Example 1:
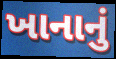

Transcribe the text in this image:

ખાનાનું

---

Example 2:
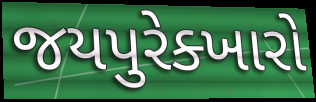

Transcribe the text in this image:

જયપુરેક્ખારો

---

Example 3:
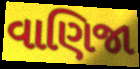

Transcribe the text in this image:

વાણિજા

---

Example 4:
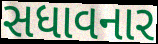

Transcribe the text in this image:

સધાવનાર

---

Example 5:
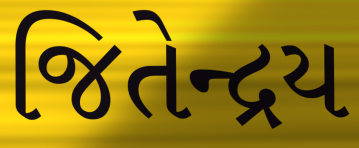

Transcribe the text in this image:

જિતેન્દ્રય